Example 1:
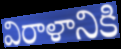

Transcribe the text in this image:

విరాళానికి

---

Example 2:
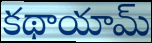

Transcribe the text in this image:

కథాయామ్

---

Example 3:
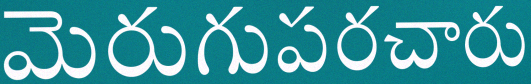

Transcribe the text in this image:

మెరుగుపరచారు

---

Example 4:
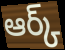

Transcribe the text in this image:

ఆర్క్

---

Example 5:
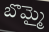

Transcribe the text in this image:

బొమ్మై